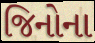
જિનોના